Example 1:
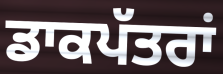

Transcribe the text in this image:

ਡਾਕਪੱਤਰਾਂ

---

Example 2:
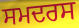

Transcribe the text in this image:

ਸਮਦਰਸ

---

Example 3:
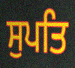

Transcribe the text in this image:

ਸੁਪਤਿ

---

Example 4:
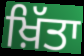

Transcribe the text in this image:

ਖ਼ਿੱਤਾ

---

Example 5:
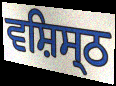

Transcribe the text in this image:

ਵਸ਼ਿਸ੍ਠ